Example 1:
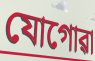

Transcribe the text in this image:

যোগোৱা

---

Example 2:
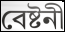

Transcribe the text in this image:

বেষ্টনী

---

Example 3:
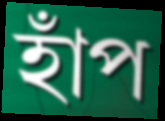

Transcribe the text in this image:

হাঁপ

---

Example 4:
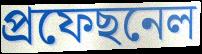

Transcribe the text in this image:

প্ৰফেছনেল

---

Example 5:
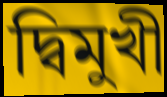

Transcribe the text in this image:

দ্বিমুখী